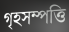
গৃহসম্পত্তি